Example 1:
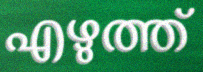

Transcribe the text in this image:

എഴുത്ത്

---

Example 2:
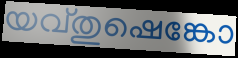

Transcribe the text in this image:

യവ്തുഷെങ്കോ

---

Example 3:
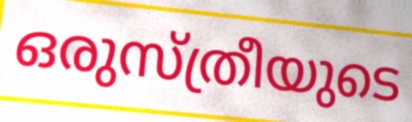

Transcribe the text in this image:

ഒരുസ്ത്രീയുടെ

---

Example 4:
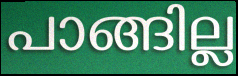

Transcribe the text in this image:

പാങ്ങില്ല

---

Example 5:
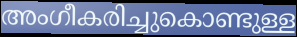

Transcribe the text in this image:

അംഗീകരിച്ചുകൊണ്ടുള്ള